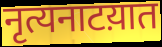
नृत्यनाटय़ात